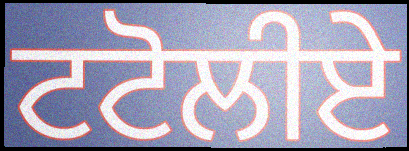
ਟਟੋਲੀਏ